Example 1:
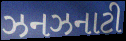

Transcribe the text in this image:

ઝનઝનાટી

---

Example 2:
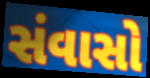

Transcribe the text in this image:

સંવાસો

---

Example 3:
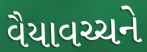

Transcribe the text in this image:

વૈયાવચ્ચને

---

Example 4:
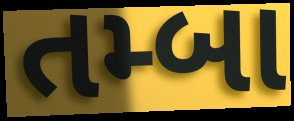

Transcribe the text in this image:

તમ્બા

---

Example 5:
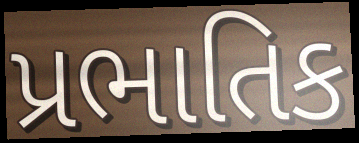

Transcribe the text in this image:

પ્રભાતિક